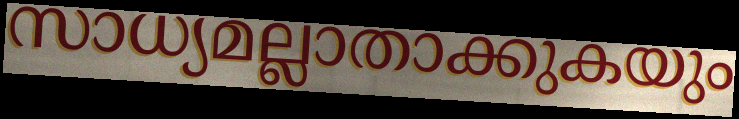
സാധ്യമല്ലാതാക്കുകയും